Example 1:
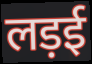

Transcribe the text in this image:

लड़ई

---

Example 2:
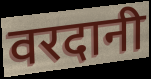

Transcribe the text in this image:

वरदानी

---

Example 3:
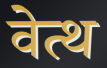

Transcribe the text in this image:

वेत्थ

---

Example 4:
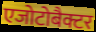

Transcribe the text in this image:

एजोटोबैक्टर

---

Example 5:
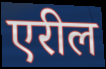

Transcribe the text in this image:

एरील